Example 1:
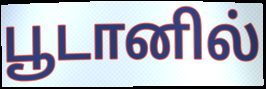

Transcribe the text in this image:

பூடானில்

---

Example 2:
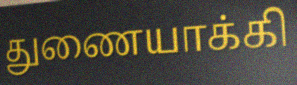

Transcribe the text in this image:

துணையாக்கி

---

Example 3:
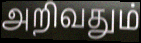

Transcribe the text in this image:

அறிவதும்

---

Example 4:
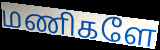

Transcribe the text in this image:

மணிகளே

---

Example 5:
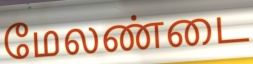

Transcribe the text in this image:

மேலண்டை